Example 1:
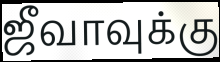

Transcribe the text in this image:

ஜீவாவுக்கு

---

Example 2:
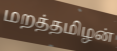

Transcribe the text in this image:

மறத்தமிழன்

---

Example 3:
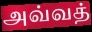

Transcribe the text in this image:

அவ்வத்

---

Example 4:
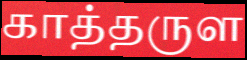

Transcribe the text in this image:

காத்தருள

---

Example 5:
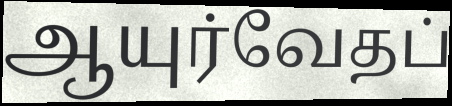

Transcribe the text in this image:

ஆயுர்வேதப்